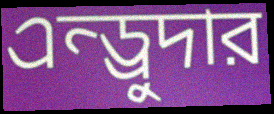
এন্ড্রুদার